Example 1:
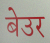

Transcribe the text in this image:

बेउर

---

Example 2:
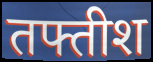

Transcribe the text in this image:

तफ्तीश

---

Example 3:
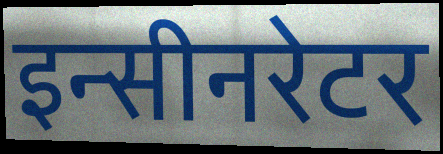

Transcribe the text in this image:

इन्सीनरेटर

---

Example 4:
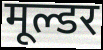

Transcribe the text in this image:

मूल्डर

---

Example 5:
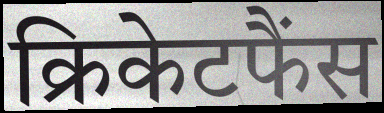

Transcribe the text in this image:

क्रिकेटफैंस